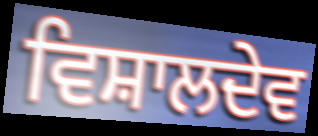
ਵਿਸ਼ਾਲਦੇਵ